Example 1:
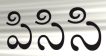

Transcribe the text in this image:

పిసిసి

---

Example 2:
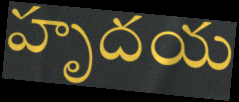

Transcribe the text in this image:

హృదయ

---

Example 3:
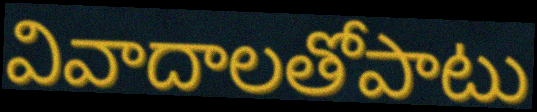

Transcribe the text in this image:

వివాదాలతోపాటు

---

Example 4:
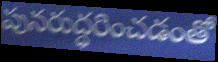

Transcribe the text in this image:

పునరుద్ధరించడంతో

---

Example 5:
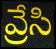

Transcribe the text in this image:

వ్రేసి